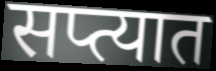
सप्त्यात